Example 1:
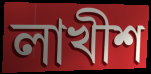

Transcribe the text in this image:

লাখীশ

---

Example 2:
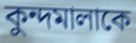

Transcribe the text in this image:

কুন্দমালাকে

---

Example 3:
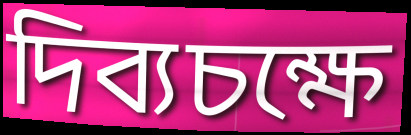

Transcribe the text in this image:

দিব্যচক্ষে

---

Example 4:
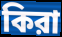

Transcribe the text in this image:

কিরা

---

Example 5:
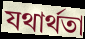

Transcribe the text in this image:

যথার্থতা